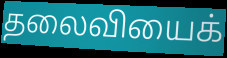
தலைவியைக்